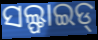
ସଲ୍ଫାଇଡ୍